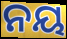
ନୟ